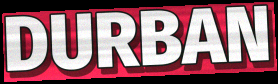
DURBAN